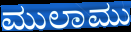
ಮುಲಾಮು